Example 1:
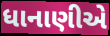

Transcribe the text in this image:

ધાનાણીએ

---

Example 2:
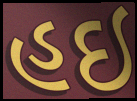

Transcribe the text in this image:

હઇ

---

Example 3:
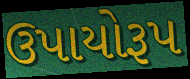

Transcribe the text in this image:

ઉપાયોરૂપ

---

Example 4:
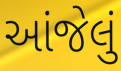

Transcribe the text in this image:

આંજેલું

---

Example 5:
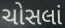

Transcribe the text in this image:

ચોસલાં